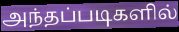
அந்தப்படிகளில்